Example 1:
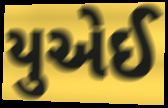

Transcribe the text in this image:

યુએઈ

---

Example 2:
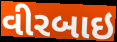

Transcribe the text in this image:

વીરબાઇ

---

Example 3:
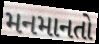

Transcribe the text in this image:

મનમાનતો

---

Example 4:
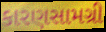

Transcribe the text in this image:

કારણસામગ્રી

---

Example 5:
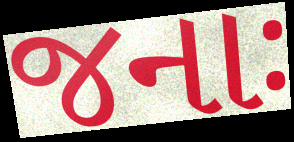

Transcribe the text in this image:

જનાઃ